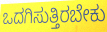
ಒದಗಿಸುತ್ತಿರಬೇಕು